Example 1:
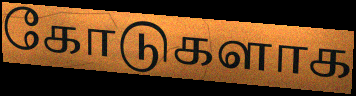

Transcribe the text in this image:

கோடுகளாக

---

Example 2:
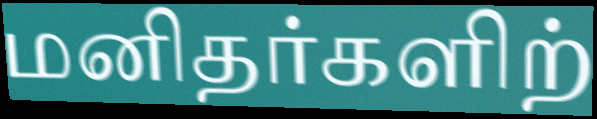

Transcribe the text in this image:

மனிதர்களிற்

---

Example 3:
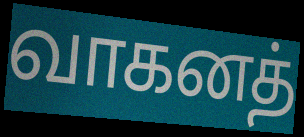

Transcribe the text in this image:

வாகனத்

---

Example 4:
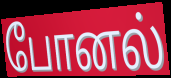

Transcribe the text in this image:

போனல்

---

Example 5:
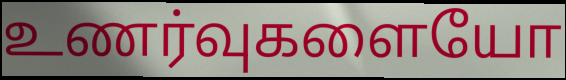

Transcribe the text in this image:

உணர்வுகளையோ